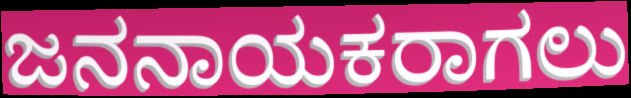
ಜನನಾಯಕರಾಗಲು